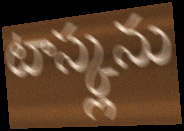
టాస్క్లను